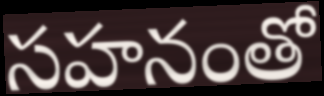
సహనంతో